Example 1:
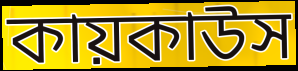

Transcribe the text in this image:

কায়কাউস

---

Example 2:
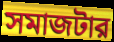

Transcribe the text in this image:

সমাজটার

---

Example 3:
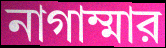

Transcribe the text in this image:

নাগাম্মার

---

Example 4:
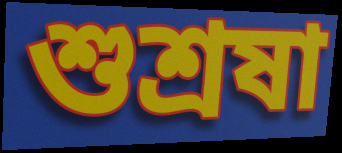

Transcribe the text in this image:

শুশ্রষা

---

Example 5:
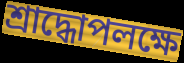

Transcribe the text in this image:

শ্রাদ্ধোপলক্ষে